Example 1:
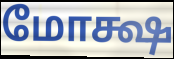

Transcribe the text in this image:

மோக்ஷ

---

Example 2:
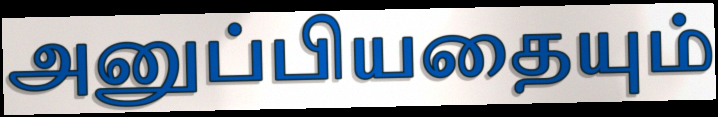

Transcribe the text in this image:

அனுப்பியதையும்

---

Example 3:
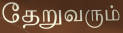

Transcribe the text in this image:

தேறுவரும்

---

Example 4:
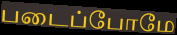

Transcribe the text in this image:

படைப்போமே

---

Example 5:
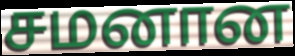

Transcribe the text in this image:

சமனான